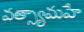
వత్స్యామహే